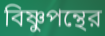
বিষ্ণুপন্থের